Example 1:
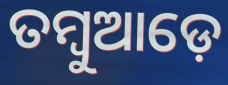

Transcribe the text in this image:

ତମ୍ବୁଆଡ଼େ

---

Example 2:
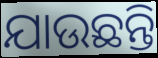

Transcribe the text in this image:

ଯାଉଛନ୍ତି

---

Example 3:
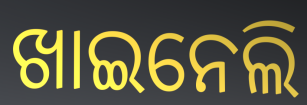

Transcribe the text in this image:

ଖାଇନେଲି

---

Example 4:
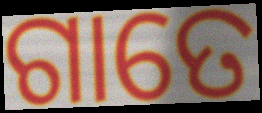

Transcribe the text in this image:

ଗାତେ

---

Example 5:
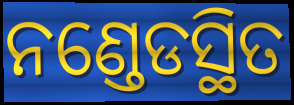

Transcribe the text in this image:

ନଣ୍ଡେଡସ୍ଥିତ